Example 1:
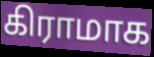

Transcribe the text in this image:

கிராமாக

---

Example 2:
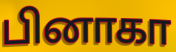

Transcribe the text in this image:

பினாகா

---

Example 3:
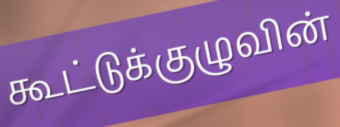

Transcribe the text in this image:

கூட்டுக்குழுவின்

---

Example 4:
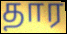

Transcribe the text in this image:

தார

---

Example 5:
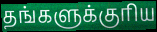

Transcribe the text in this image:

தங்களுக்குரிய